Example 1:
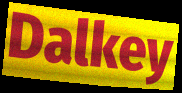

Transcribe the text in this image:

Dalkey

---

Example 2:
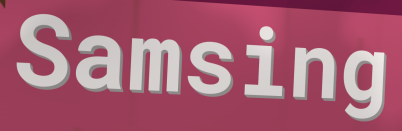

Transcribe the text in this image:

Samsing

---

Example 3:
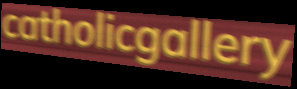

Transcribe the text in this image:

catholicgallery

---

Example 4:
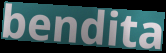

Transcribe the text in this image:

bendita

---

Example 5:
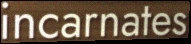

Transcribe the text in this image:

incarnates